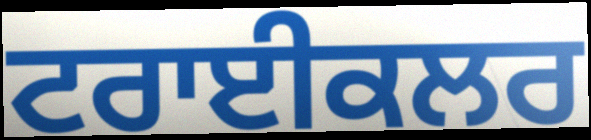
ਟਰਾਈਕਲਰ